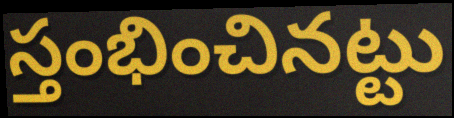
స్తంభించినట్టు